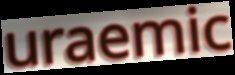
uraemic